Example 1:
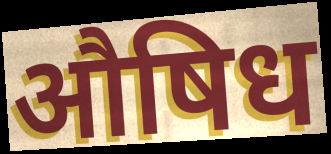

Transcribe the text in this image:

औषिध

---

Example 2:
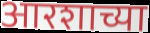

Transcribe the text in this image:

आरशाच्या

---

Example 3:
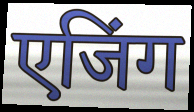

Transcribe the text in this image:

एजिंग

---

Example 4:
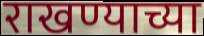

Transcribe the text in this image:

राखण्याच्या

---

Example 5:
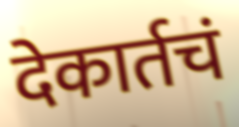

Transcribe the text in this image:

देकार्तचं